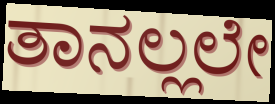
ತಾನಲ್ಲಲೇ